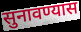
सुनावण्यास